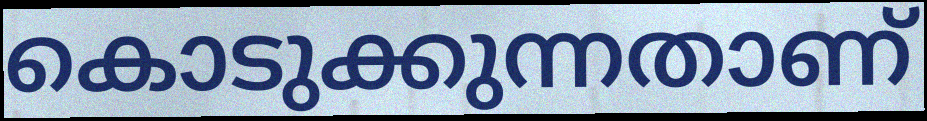
കൊടുക്കുന്നതാണ്